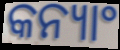
କନ୍ୟାଂ